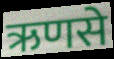
ऋणसे